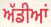
ਅੱਡੀਆਂ